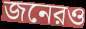
জনেরও